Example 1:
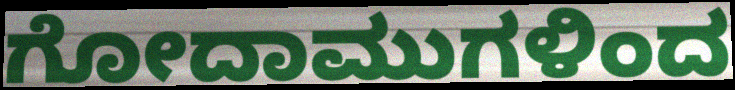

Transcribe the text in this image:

ಗೋದಾಮುಗಳಿಂದ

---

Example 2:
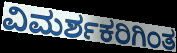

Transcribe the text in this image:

ವಿಮರ್ಶಕರಿಗಿಂತ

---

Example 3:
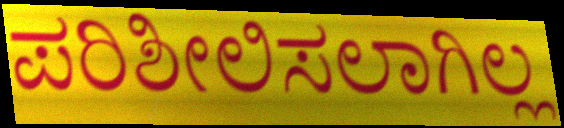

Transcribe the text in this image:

ಪರಿಶೀಲಿಸಲಾಗಿಲ್ಲ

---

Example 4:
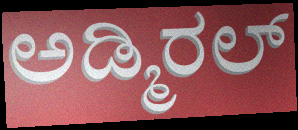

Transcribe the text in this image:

ಅಡ್ಮಿರಲ್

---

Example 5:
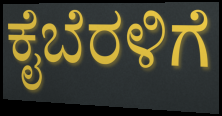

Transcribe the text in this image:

ಕೈಬೆರಳಿಗೆ